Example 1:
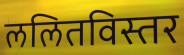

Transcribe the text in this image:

ललितविस्तर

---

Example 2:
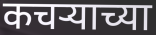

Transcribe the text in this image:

कचर्‍याच्या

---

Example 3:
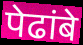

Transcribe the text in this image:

पेढांबे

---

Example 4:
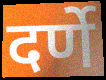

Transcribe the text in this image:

दर्णे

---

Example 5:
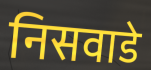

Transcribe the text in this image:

निसवाडे